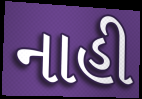
નાહી